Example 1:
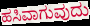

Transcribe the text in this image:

ಹಸಿವಾಗುವುದು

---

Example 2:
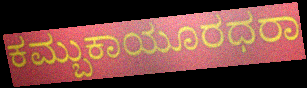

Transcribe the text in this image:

ಕಮ್ಬುಕಾಯೂರಧರಾ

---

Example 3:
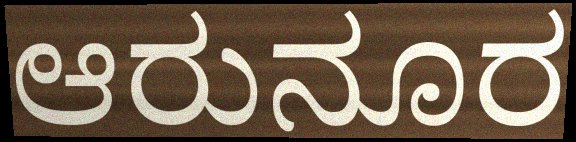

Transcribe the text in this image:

ಆರುನೂರ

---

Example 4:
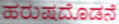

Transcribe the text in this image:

ಹರುಷದೊಡನೆ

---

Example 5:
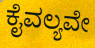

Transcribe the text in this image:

ಕೈವಲ್ಯವೇ